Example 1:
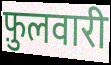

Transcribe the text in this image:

फ़ुलवारी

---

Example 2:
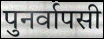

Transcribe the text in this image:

पुनर्वापसी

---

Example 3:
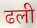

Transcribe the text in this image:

ढली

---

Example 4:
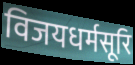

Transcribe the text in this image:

विजयधर्मसूरि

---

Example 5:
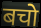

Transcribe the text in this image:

बचो